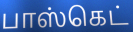
பாஸ்கெட்